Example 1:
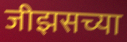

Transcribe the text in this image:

जीझसच्या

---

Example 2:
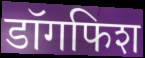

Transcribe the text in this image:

डॉगफिश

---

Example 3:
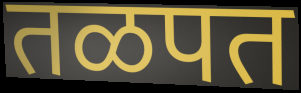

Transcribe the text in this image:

तळपत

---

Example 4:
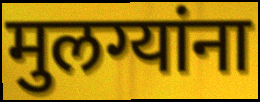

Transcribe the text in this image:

मुलग्यांना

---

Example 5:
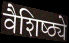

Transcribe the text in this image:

वैशिष्ठ्ये